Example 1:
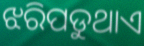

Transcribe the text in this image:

ଝରିପଡୁଥାଏ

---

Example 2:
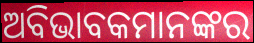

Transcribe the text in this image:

ଅବିଭାବକମାନଙ୍କର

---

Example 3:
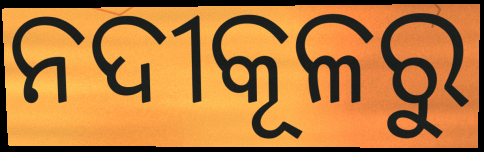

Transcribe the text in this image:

ନଦୀକୂଳରୁ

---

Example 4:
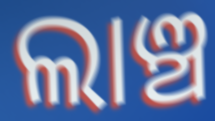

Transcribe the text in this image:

ଲାଞ୍ଚ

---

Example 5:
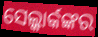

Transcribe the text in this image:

ସେଲ୍କାର୍କଙ୍କର